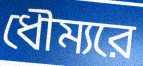
ধৌম্যরে